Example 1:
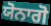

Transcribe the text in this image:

ਯੋਨਾਗੋ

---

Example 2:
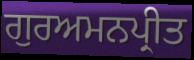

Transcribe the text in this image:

ਗੁਰਅਮਨਪ੍ਰੀਤ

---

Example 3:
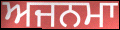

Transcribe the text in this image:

ਅਜਨਮਾ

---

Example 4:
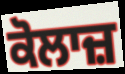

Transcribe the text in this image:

ਕੋਲਾਜ਼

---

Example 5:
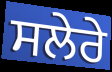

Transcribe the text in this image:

ਸਲੇਰੇ